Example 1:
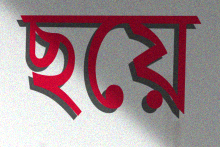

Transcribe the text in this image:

ছয়ে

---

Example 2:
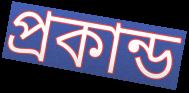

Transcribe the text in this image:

প্রকান্ড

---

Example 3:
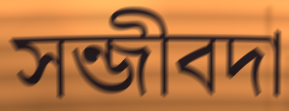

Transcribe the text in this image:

সন্জীবদা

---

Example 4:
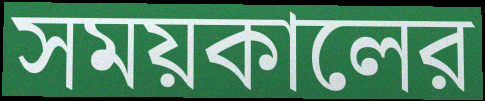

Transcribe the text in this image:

সময়কালের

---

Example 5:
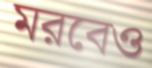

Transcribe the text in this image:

মরবেও